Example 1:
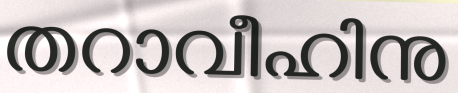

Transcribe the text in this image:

തറാവീഹിനു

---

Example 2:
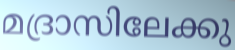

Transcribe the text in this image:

മദ്രാസിലേക്കു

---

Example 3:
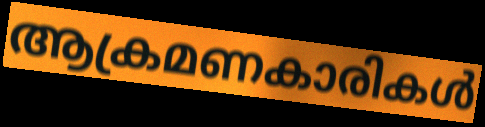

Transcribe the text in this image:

ആക്രമണകാരികൾ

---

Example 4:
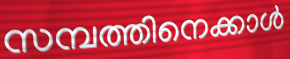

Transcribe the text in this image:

സമ്പത്തിനെക്കാൾ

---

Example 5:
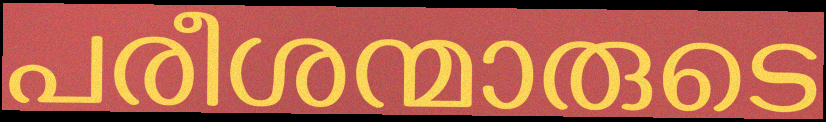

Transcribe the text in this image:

പരീശന്മാരുടെ